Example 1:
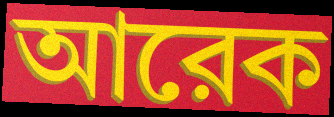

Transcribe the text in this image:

আরেক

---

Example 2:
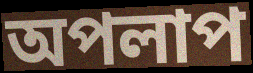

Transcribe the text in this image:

অপলাপ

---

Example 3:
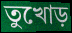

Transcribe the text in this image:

তুখোড়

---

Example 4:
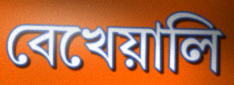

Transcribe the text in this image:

বেখেয়ালি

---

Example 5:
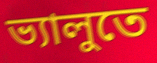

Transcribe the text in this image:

ভ্যালুতে